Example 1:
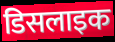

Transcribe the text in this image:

डिसलाइक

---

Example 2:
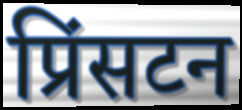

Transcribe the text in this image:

प्रिंसटन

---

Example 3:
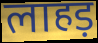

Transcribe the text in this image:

लाहड़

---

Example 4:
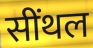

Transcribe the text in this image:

सींथल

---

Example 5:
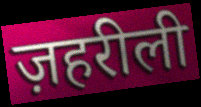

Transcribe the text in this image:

ज़हरीली